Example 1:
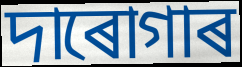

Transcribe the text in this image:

দাৰোগাৰ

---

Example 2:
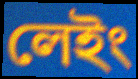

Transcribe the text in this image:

লেইং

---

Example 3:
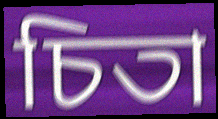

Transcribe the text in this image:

চিতা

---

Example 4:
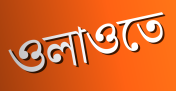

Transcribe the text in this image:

ওলাওতে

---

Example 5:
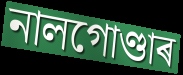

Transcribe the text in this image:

নালগোণ্ডাৰ